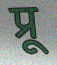
प्रू